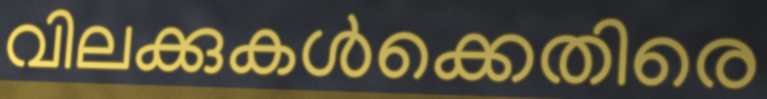
വിലക്കുകൾക്കെതിരെ